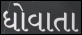
ધોવાતા